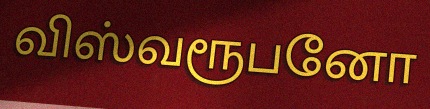
விஸ்வரூபனோ